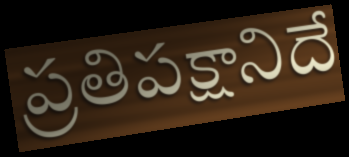
ప్రతిపక్షానిదే